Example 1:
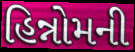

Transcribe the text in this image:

હિન્નોમની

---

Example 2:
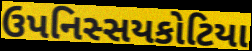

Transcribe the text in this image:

ઉપનિસ્સયકોટિયા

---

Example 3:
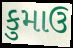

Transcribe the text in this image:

કુમાઉ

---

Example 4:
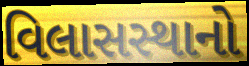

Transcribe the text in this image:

વિલાસસ્થાનો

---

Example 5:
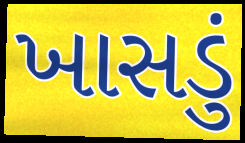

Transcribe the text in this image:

ખાસડું